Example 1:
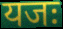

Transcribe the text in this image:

यजः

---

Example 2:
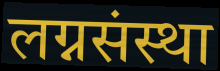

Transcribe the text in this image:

लग्नसंस्था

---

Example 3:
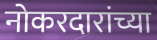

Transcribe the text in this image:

नोकरदारांच्या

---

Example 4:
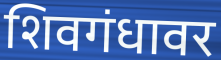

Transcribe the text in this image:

शिवगंधावर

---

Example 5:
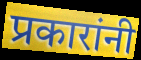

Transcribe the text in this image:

प्रकारांनी